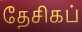
தேசிகப்